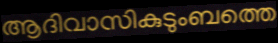
ആദിവാസികുടുംബത്തെ